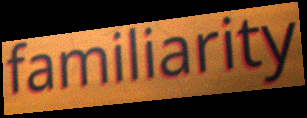
familiarity